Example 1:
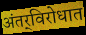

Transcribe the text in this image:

अंतर्विरोधात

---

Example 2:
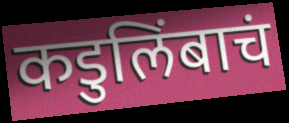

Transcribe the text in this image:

कडुलिंबाचं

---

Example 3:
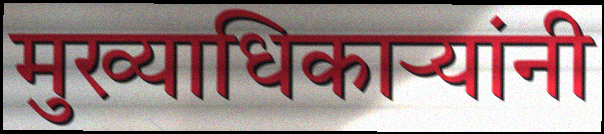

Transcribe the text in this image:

मुख्याधिकाऱ्यांनी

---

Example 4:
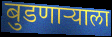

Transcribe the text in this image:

बुडणाऱ्याला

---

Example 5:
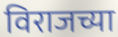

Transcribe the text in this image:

विराजच्या